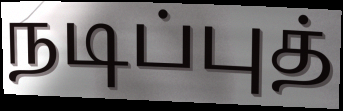
நடிப்புத்